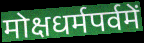
मोक्षधर्मपर्वमें